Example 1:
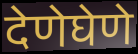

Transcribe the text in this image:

देणेघेणे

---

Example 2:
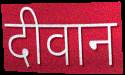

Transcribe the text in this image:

दीवान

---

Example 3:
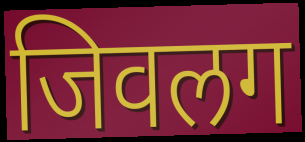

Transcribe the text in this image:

जिवलग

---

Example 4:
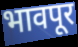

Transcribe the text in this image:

भावपूर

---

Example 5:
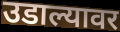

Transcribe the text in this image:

उडाल्यावर